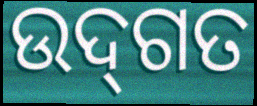
ଉଦ୍‌ଗତ